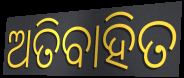
ଅତିବାହିତ